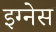
इग्नेस